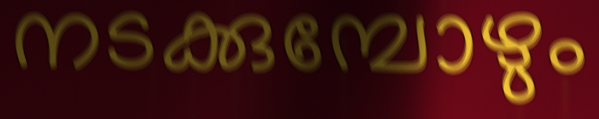
നടക്കുമ്പോഴും